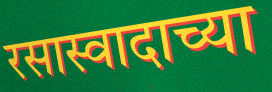
रसास्वादाच्या